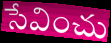
సేవించు